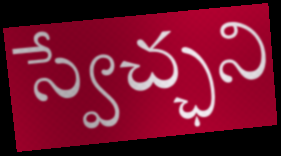
స్వేచ్ఛని